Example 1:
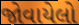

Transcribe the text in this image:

જોવાયેલો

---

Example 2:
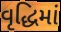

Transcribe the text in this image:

વૃદ્ધિમાં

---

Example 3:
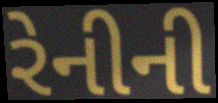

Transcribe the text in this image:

રેનીની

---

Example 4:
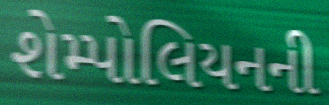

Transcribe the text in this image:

શેમ્પોલિયનની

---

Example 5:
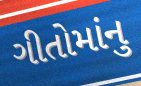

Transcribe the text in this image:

ગીતોમાંનુ